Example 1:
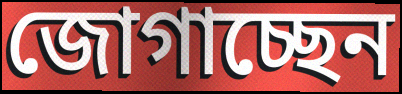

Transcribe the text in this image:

জোগাচ্ছেন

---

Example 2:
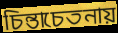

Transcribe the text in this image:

চিন্তাচেতনায়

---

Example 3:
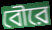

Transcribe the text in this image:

বৌরে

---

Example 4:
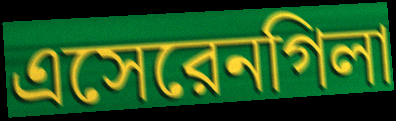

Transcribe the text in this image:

এসেরেনগিলা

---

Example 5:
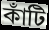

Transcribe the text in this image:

কাঁটি